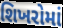
શિખરોમાં